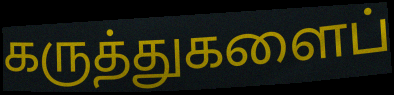
கருத்துகளைப்